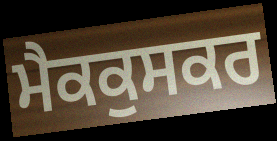
ਮੈਕਕੁਸਕਰ